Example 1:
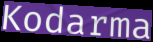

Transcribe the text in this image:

Kodarma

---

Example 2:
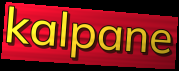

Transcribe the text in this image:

kalpane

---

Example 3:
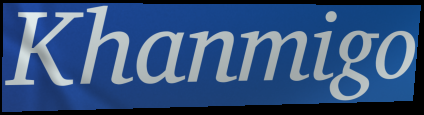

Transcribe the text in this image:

Khanmigo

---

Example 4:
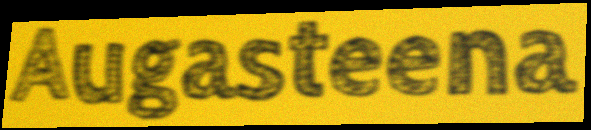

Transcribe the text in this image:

Augasteena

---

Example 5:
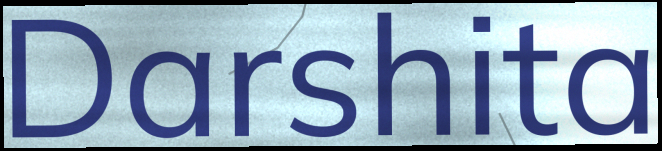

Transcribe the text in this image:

Darshita